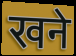
खने